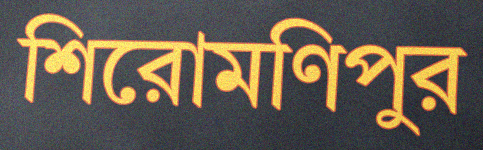
শিরোমণিপুর